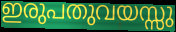
ഇരുപതുവയസ്സു